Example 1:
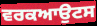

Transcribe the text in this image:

ਵਰਕਆਉਟਸ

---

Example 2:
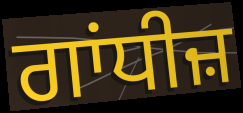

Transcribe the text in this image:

ਗਾਂਧੀਜ਼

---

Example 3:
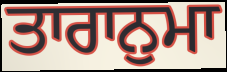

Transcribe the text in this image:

ਤਾਰਾਨੁਮਾ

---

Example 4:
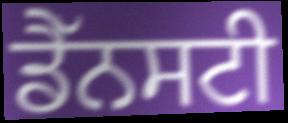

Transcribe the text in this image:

ਡੈੱਨਸਟੀ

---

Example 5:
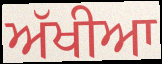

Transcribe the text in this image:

ਅੱਖੀਆ